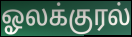
ஓலக்குரல்